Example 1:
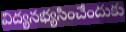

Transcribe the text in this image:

విద్యనభ్యసించేందుకు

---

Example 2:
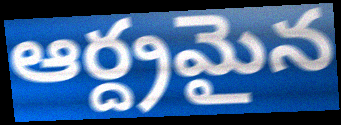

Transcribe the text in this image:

ఆర్ద్రమైన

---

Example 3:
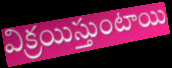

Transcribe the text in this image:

విక్రయిస్తుంటాయి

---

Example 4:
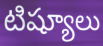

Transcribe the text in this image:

టిష్యూలు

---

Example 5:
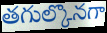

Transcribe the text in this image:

తగుల్కొనగా